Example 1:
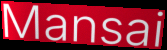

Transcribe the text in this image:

Mansai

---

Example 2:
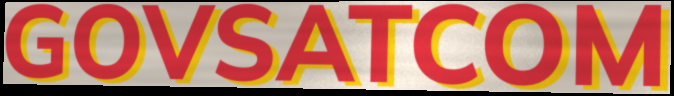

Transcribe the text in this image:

GOVSATCOM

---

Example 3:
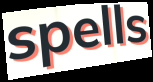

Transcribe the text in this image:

spells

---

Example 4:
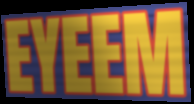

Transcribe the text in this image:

EYEEM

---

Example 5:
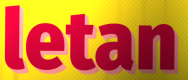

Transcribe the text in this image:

letan